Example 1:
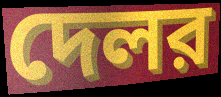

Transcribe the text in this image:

দেলর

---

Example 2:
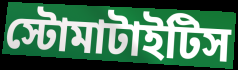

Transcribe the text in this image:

স্টোমাটাইটিস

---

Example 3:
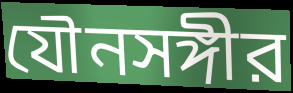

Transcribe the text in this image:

যৌনসঙ্গীর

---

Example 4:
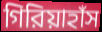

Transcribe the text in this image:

গিরিয়াহাঁস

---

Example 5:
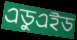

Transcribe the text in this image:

এডুএইড